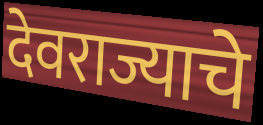
देवराज्याचे